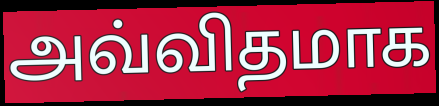
அவ்விதமாக